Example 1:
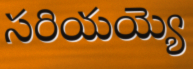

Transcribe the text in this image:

సరియయ్యె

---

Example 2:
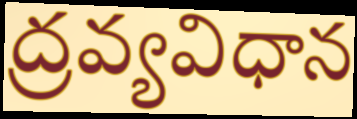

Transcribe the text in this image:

ద్రవ్యవిధాన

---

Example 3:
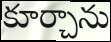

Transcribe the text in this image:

కూర్చాను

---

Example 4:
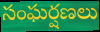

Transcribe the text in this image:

సంఘర్షణలు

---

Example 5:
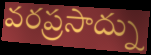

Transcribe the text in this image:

వరప్రసాద్ను